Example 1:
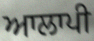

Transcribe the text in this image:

ਆਲਾਪੀ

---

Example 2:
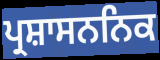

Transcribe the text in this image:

ਪ੍ਰਸ਼ਾਸਨਨਿਕ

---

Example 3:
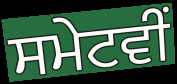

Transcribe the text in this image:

ਸਮੇਟਵੀਂ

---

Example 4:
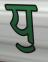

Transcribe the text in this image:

ਧੁ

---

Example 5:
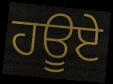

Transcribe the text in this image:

ਹਊਏ